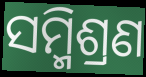
ସମ୍ମିଶ୍ରଣ